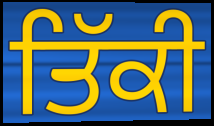
ਤਿੱਕੀ